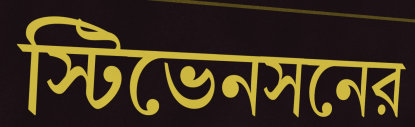
স্টিভেনসনের